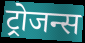
ट्रोजन्स